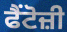
ਫੈਂਟੋਜ਼ੀ